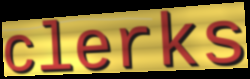
clerks